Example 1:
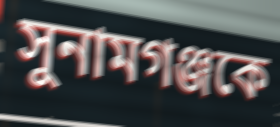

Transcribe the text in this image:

সুনামগঞ্জকে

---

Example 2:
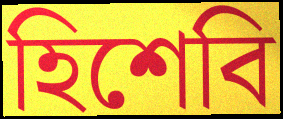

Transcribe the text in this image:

হিশেবি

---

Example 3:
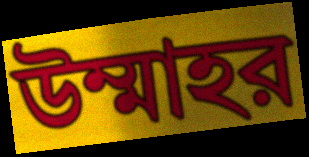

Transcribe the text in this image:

উম্মাহর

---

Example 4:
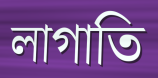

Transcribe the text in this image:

লাগাতি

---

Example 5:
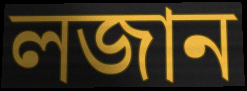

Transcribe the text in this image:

লজান